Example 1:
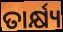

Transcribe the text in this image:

ତାର୍କ୍ଷ୍ୟ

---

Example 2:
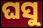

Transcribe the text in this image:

ଘସୁ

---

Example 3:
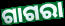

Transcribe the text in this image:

ଗାଗରା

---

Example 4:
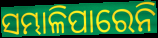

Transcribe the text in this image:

ସମ୍ଭାଳିପାରେନି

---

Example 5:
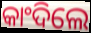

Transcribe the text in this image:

କାଂଦିଲେ